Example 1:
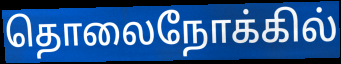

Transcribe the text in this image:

தொலைநோக்கில்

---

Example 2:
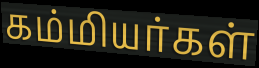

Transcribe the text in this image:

கம்மியர்கள்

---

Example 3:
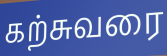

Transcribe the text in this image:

கற்சுவரை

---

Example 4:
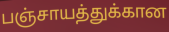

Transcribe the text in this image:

பஞ்சாயத்துக்கான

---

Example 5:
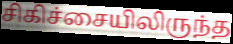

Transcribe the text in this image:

சிகிச்சையிலிருந்த